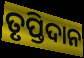
ତୃପ୍ତିଦାନ